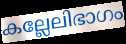
കല്ലേലിഭാഗം